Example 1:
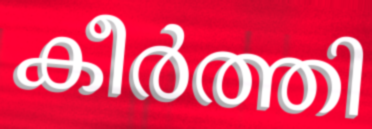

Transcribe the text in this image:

കീർത്തി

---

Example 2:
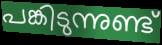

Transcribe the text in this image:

പങ്കിടുന്നുണ്ട്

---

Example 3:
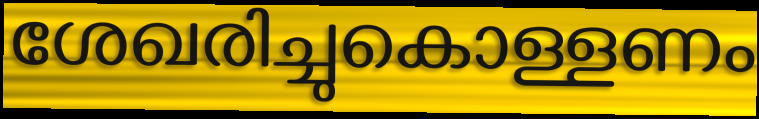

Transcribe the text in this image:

ശേഖരിച്ചുകൊള്ളണം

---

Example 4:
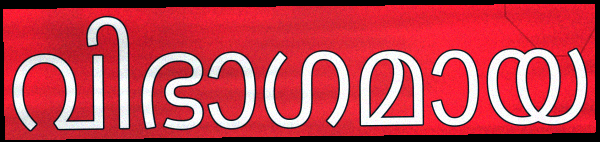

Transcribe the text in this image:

വിഭാഗമായ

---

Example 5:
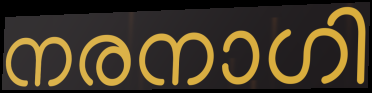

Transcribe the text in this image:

നരനാഗി